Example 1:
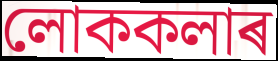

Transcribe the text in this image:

লোককলাৰ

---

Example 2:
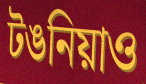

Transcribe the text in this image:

টঙনিয়াও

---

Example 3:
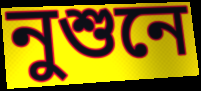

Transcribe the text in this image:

নুশুনে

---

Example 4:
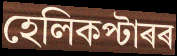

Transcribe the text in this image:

হেলিকপ্টাৰৰ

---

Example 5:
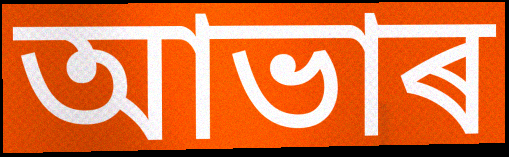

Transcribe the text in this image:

আভাৰ